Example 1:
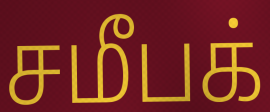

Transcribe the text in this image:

சமீபக்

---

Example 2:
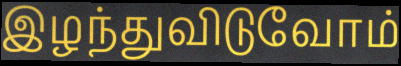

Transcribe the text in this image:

இழந்துவிடுவோம்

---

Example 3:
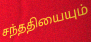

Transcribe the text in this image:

சந்ததியையும்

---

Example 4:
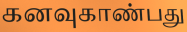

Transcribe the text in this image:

கனவுகாண்பது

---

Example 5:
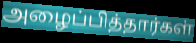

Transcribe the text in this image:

அழைப்பித்தார்கள்